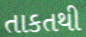
તાકતથી